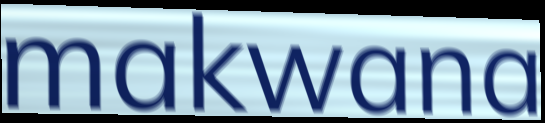
makwana